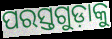
ପରସ୍ତଗୁଡ଼ାକୁ